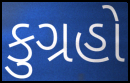
કુગ્રહો